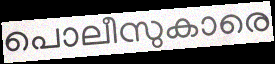
പൊലീസുകാരെ